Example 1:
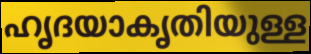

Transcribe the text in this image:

ഹൃദയാകൃതിയുള്ള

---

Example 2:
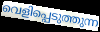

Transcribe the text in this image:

വെളിപ്പെടുത്തുന്ന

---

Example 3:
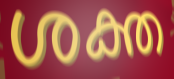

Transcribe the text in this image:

ശക്ത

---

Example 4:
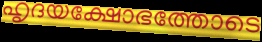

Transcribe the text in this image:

ഹൃദയക്ഷോഭത്തോടെ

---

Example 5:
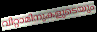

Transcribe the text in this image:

വിറ്റാമിനുകളുടെയും